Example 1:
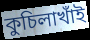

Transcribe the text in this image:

কুচিলাখাঁই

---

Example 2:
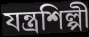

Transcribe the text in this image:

যন্ত্রশিল্পী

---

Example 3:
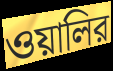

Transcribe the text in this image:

ওয়ালির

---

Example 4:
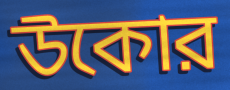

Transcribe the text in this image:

উকোর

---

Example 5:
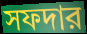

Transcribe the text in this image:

সফদার